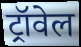
ट्रॉवेल